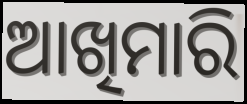
ଆଖିମାରି